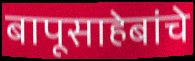
बापूसाहेबांचे